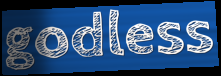
godless